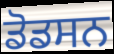
ਡੋਡਸਨ